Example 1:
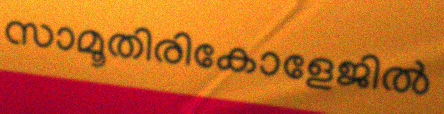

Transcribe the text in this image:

സാമൂതിരികോളേജിൽ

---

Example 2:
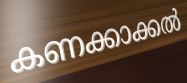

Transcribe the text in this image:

കണക്കാക്കൽ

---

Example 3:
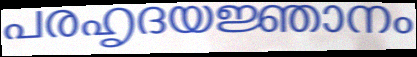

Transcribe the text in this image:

പരഹൃദയജ്ഞാനം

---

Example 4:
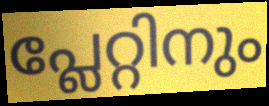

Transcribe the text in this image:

പ്ലേറ്റിനും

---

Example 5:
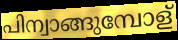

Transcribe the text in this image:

പിന്വാങ്ങുമ്പോള്